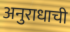
अनुराधाची